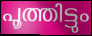
പൂത്തിട്ടും